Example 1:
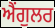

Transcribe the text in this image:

ਐਂਗੁਲਰ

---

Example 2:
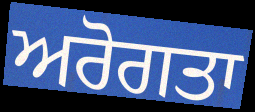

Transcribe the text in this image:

ਅਰੋਗਤਾ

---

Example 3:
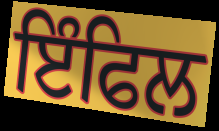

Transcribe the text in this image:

ਇੰਫਿਲ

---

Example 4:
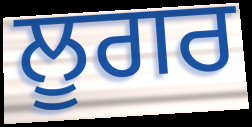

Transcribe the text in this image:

ਲੂਗਰ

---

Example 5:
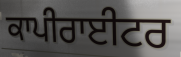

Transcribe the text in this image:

ਕਾਪੀਰਾਈਟਰ